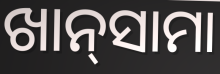
ଖାନ୍‌ସାମା